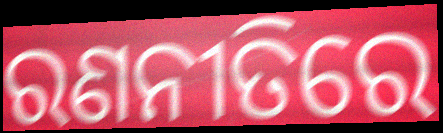
ରଣନୀତିରେ